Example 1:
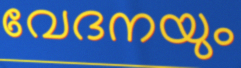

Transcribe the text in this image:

വേദനയും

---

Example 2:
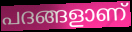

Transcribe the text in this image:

പദങ്ങളാണ്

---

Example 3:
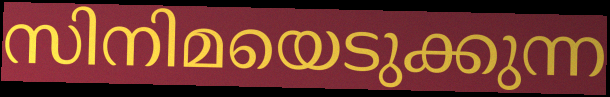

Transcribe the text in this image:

സിനിമയെടുക്കുന്ന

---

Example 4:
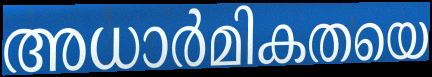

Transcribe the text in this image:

അധാർമികതയെ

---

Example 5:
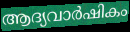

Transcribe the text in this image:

ആദ്യവാർഷികം